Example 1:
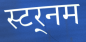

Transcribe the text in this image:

स्टर्नम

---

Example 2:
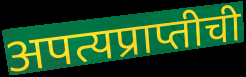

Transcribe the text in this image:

अपत्यप्राप्तीची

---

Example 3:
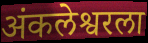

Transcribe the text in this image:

अंकलेश्वरला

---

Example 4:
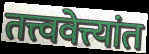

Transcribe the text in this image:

तत्त्ववेत्त्यांत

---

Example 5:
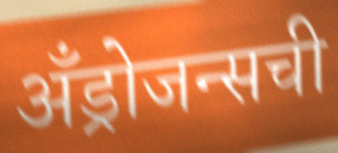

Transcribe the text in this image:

अँड्रोजन्सची